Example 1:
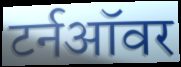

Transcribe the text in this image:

टर्नऑवर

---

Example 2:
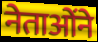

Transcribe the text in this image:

नेताओंने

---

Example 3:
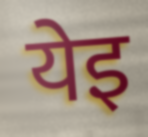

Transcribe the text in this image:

येइ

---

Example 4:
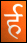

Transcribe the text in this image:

र्ह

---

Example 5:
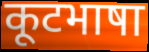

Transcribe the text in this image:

कूटभाषा